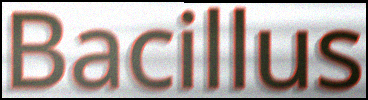
Bacillus